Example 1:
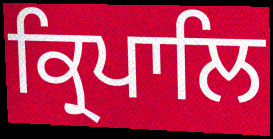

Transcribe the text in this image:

ਕ੍ਰਿਪਾਲਿ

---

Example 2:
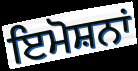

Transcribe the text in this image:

ਇਮੋਸ਼ਨਾਂ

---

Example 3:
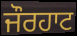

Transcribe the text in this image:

ਜੌਰਹਾਟ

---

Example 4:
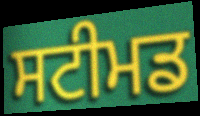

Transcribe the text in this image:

ਸਟੀਮਡ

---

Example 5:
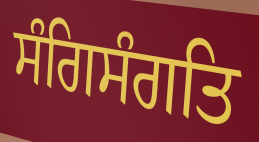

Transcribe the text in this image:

ਸੰਗਿਸੰਗਤਿ